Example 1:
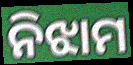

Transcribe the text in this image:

ନିଝାମ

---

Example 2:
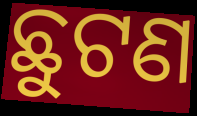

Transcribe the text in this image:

ଛୁଟଣ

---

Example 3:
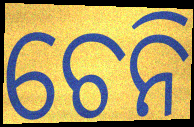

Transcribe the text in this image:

ଚେନି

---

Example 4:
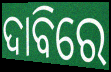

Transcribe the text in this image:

ଦାବିରେ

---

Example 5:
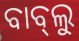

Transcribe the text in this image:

ବାବ୍‍ଲୁ